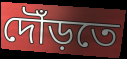
দৌঁড়তে